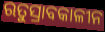
ଋତୁସ୍ରାବକାଳୀନ